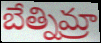
బేత్నిమ్రా